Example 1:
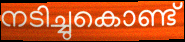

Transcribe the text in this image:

നടിച്ചുകൊണ്ട്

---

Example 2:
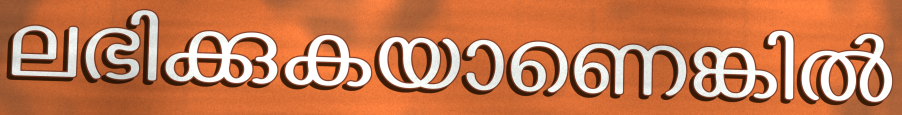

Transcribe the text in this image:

ലഭിക്കുകയാണെങ്കിൽ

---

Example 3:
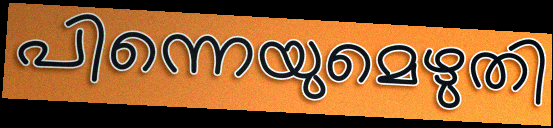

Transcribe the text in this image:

പിന്നെയുമെഴുതി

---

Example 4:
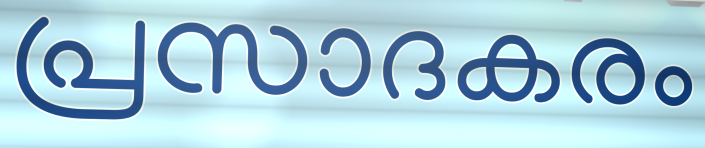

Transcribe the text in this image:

പ്രസാദകരം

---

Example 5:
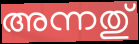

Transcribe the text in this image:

അന്നതു്